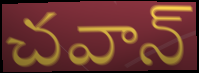
చవాన్